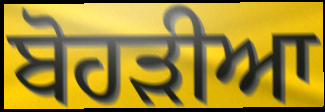
ਬੋਹੜੀਆ